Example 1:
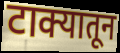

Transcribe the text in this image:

टाक्यातून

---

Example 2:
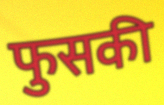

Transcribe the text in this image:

फुसकी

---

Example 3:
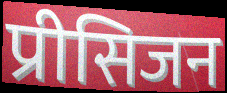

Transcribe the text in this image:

प्रीसिजन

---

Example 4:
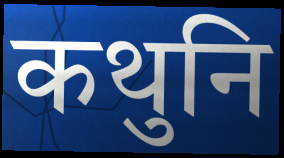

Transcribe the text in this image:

कथुनि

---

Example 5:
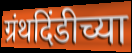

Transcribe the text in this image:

ग्रंथदिंडीच्या